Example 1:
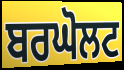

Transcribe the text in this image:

ਬਰਘੋਲਟ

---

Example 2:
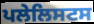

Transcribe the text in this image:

ਪਲੇਲਿਸਟਸ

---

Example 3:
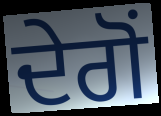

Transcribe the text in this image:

ਦੇਗੋਂ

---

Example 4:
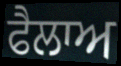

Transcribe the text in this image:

ਫੈਲਾਅ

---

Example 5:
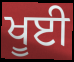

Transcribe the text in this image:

ਖੂਈ